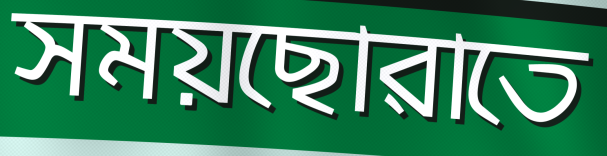
সময়ছোৱাতে